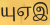
யுஏஇ